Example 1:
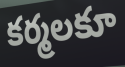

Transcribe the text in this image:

కర్మలకూ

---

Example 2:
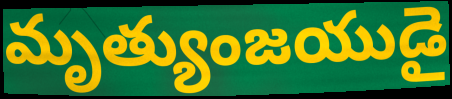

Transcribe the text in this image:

మృత్యుంజయుడై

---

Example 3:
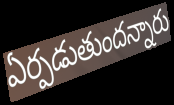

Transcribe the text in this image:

ఏర్పడుతుందన్నారు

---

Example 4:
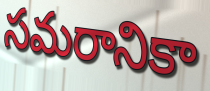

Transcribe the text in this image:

సమరానికా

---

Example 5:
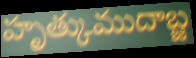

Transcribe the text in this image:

హృత్కుముదాబ్జ